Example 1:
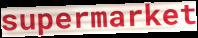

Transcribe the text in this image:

supermarket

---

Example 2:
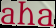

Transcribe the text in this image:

aha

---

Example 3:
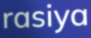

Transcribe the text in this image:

rasiya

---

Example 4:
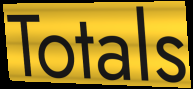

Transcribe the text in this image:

Totals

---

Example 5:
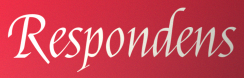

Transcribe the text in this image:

Respondens